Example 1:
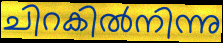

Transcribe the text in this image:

ചിറകിൽനിന്നു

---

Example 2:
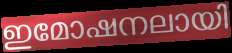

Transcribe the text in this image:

ഇമോഷനലായി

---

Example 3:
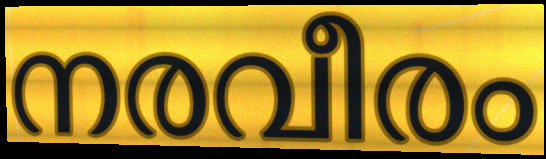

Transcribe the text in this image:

നരവീരം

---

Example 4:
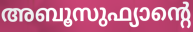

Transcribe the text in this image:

അബൂസുഫ്യാന്റെ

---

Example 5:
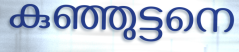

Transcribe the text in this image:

കുഞ്ഞുട്ടനെ